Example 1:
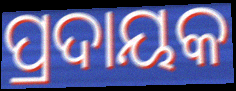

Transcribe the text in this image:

ପ୍ରଦାୟକ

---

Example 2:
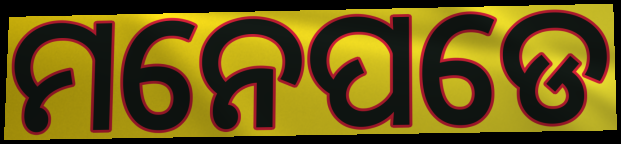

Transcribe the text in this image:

ମନେପଡେ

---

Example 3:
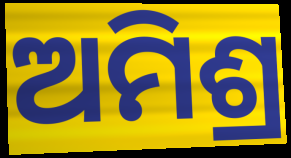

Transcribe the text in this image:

ଅମିଶ୍ର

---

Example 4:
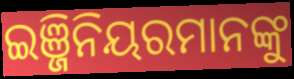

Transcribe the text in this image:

ଇଞ୍ଜିନିୟରମାନଙ୍କୁ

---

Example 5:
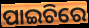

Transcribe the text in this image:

ପାଇଚିରେ